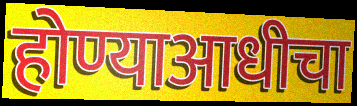
होण्याआधीचा